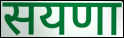
सयणा